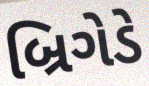
બ્રિગેડે